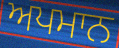
ਅਪਮਾਨ